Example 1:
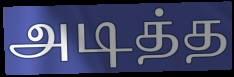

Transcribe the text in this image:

அடித்த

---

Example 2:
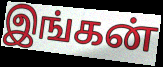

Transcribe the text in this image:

இங்கன்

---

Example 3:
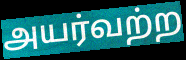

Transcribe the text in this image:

அயர்வற்ற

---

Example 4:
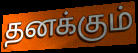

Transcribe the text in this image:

தனக்கும்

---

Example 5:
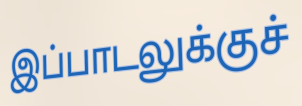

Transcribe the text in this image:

இப்பாடலுக்குச்